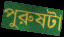
পুরুষটা